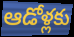
ఆడోళ్లకు